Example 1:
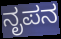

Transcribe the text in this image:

ನೃಪನ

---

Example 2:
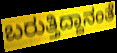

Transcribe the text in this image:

ಬರುತ್ತಿದ್ದಾನಂತೆ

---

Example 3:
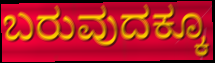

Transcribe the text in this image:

ಬರುವುದಕ್ಕೂ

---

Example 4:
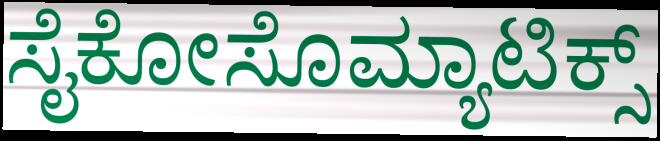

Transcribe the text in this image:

ಸೈಕೋಸೊಮ್ಯಾಟಿಕ್ಸ್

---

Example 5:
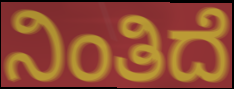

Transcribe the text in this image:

ನಿಂತಿದೆ